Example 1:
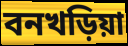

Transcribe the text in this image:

বনখড়িয়া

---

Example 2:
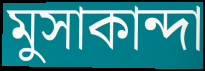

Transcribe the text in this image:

মুসাকান্দা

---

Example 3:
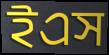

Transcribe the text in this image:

ইএস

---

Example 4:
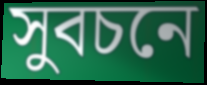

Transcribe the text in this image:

সুবচনে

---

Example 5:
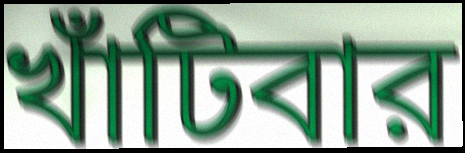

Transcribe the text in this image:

খাঁটিবার